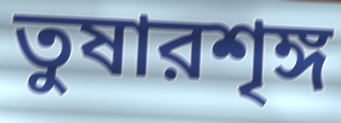
তুষারশৃঙ্গ